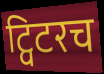
ट्विटरच